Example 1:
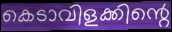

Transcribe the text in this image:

കെടാവിളക്കിന്റെ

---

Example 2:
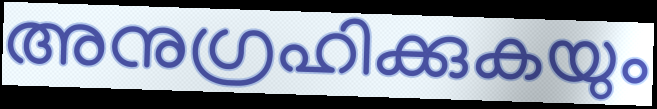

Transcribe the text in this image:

അനുഗ്രഹിക്കുകയും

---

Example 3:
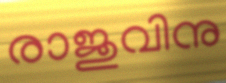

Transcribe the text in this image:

രാജുവിനു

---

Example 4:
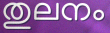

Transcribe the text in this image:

തുലനം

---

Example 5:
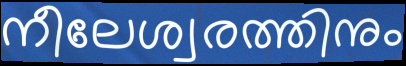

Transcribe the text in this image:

നീലേശ്വരത്തിനും